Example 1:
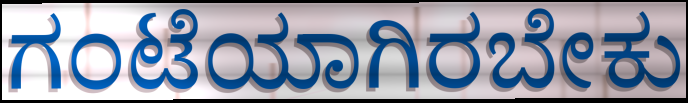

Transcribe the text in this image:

ಗಂಟೆಯಾಗಿರಬೇಕು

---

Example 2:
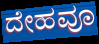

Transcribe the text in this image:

ದೇಹವೂ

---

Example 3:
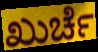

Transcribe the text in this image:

ಖುರ್ಚೆ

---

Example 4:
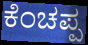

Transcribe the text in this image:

ಕೆಂಚಪ್ಪ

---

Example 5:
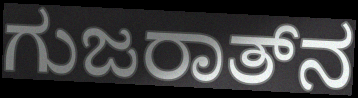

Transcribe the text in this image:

ಗುಜರಾತ್‍ನ